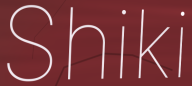
Shiki